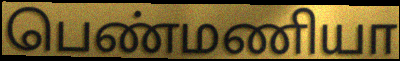
பெண்மணியா